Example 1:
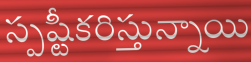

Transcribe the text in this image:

స్పష్టీకరిస్తున్నాయి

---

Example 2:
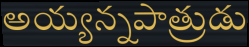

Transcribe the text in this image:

అయ్యన్నపాత్రుడు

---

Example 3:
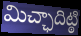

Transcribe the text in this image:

మిచ్ఛాదిట్ఠి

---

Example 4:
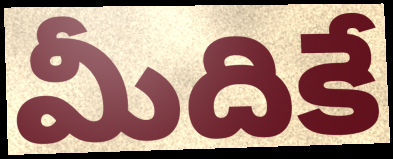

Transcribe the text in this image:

మీదికే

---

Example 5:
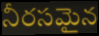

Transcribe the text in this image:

నీరసమైన